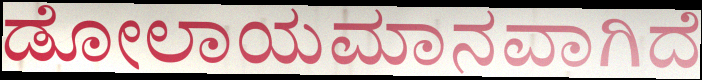
ಡೋಲಾಯಮಾನವಾಗಿದೆ